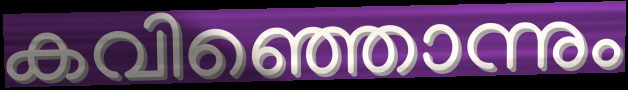
കവിഞ്ഞൊന്നും